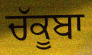
ਚੱਕੂਬਾ